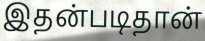
இதன்படிதான்